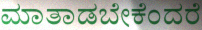
ಮಾತಾಡಬೇಕೆಂದರೆ